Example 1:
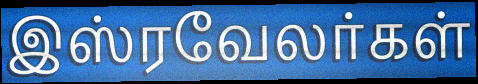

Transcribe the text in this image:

இஸ்ரவேலர்கள்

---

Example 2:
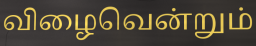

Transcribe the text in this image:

விழைவென்றும்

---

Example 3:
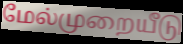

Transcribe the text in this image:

மேல்முறையீடு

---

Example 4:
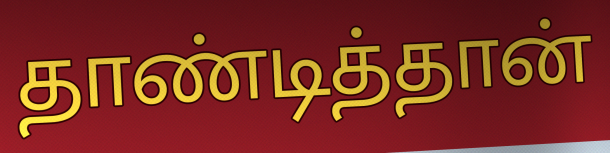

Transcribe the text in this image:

தாண்டித்தான்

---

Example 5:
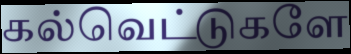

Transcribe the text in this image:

கல்வெட்டுகளே